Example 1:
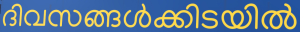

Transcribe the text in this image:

ദിവസങ്ങൾക്കിടയിൽ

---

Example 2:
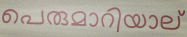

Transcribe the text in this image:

പെരുമാറിയാല്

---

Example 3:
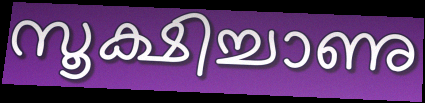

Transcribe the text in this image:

സൂക്ഷിച്ചാണു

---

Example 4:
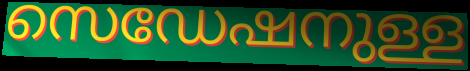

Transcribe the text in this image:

സെഡേഷനുള്ള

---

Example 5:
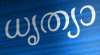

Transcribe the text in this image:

ധൃത്യാ